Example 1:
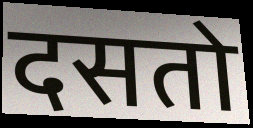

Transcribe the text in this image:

दसतो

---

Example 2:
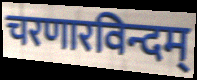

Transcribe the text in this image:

चरणारविन्दम्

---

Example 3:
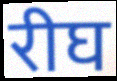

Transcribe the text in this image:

रीघ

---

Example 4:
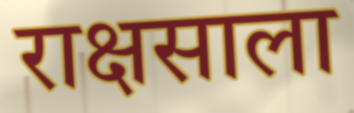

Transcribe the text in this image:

राक्षसाला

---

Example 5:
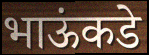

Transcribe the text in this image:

भाऊंकडे